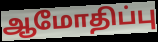
ஆமோதிப்பு